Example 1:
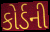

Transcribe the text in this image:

કોર્ડની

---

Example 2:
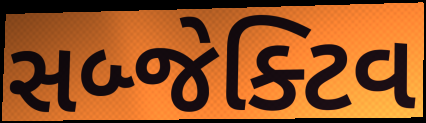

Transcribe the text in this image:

સબ્જેક્ટિવ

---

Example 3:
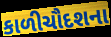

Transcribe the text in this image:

કાળીચૌદશના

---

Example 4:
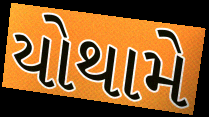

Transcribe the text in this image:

યોથામે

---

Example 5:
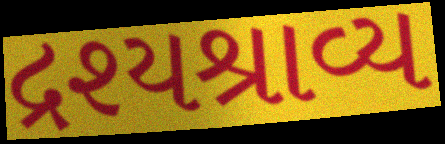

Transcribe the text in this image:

દ્રશ્યશ્રાવ્ય